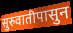
सुरुवातीपासुन